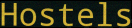
Hostels